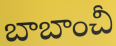
బాబాంచీ